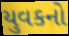
યુવકનો